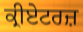
ਕ੍ਰੀਏਟਰਜ਼